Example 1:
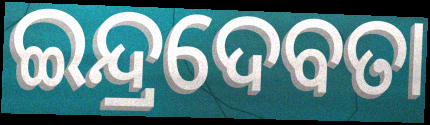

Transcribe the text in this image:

ଇନ୍ଦ୍ରଦେବତା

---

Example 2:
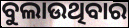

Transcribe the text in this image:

ବୁଲାଉଥିବାର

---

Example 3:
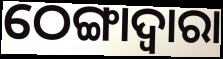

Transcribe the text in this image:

ଠେଙ୍ଗାଦ୍ୱାରା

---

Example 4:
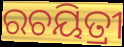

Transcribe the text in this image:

ରଚୟିତ୍ରୀ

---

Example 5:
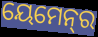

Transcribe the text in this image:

ୟେମେନ୍‌ର